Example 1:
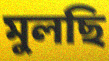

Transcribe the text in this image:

মুলছি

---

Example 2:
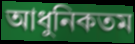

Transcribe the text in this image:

আধুনিকতম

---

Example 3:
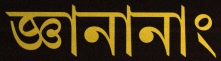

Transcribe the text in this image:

জ্ঞানানাং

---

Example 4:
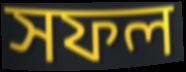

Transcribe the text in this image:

সফল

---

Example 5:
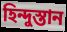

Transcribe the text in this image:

হিন্দুস্তান